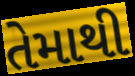
તેમાથી